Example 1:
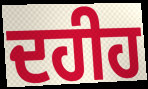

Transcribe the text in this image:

ਦਹੀਹ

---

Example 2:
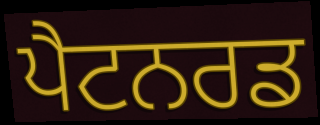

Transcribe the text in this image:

ਪੈਟਨਰਡ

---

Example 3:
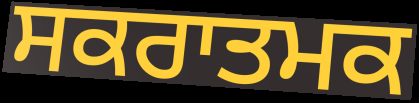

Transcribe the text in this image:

ਸਕਰਾਤਮਕ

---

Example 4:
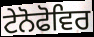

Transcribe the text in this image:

ਟੇਨੋਫੋਵਿਰ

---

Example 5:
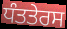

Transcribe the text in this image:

ਧੰਤਤੇਰਸ